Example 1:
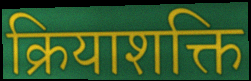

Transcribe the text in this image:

क्रियाशक्ति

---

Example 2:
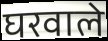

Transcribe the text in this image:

घरवाले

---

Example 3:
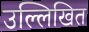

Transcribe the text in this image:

उल्लिखित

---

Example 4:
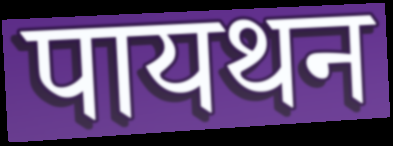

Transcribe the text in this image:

पायथन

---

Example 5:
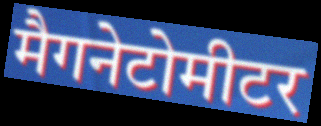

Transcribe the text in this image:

मैगनेटोमीटर